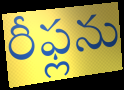
రీఫ్లను